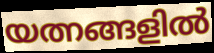
യത്നങ്ങളിൽ